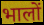
भालों